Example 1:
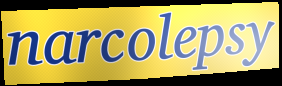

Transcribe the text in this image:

narcolepsy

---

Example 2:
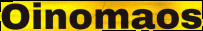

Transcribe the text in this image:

Oinomaos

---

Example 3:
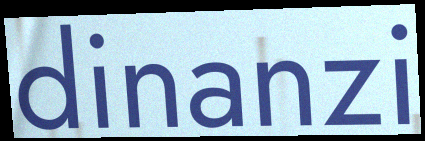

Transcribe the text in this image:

dinanzi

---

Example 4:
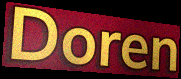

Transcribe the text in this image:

Doren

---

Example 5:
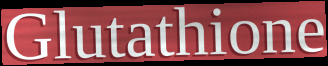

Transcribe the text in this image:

Glutathione